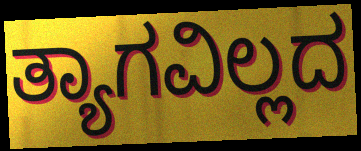
ತ್ಯಾಗವಿಲ್ಲದ